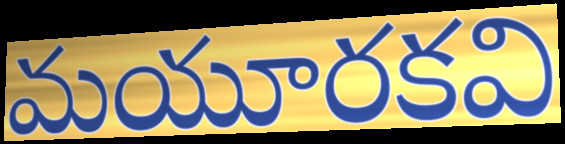
మయూరకవి